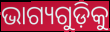
ଭାଗ୍ୟଗୁଡ଼ିକୁ